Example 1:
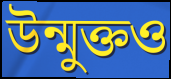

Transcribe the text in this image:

উন্মুক্তও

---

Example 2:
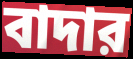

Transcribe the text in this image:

বাদার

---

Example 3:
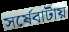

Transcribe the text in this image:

সর্ষেবাটায়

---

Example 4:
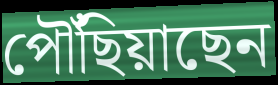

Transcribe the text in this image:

পৌঁছিয়াছেন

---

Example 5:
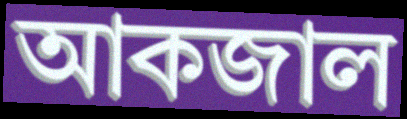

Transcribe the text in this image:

আকজাল